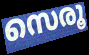
സെരൂ